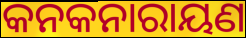
କନକନାରାୟଣ